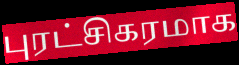
புரட்சிகரமாக